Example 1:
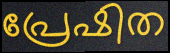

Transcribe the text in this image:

പ്രേഷിത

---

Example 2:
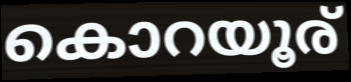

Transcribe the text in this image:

കൊറയൂര്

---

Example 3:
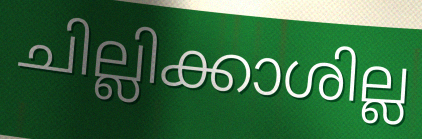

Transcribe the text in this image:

ചില്ലിക്കാശില്ല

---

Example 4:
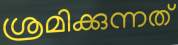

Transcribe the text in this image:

ശ്രമിക്കുന്നത്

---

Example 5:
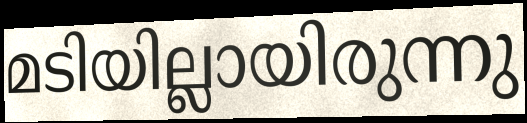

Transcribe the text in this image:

മടിയില്ലായിരുന്നു